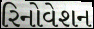
રિનોવેશન